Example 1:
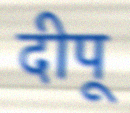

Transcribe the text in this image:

दीपू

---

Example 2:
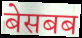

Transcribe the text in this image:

बेसबब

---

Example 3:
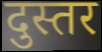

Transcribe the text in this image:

दुस्तर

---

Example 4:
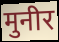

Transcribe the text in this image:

मुनीर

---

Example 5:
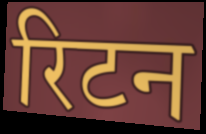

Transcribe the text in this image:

रिटन